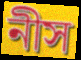
নীস